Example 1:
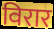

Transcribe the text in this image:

विरार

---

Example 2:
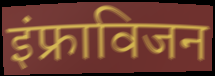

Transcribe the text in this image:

इंफ्राविजन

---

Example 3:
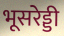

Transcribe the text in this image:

भूसरेड्डी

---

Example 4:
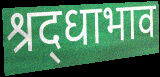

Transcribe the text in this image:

श्रद्धाभाव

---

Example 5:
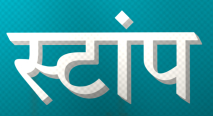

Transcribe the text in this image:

स्टांप